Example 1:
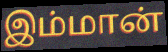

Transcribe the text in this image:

இம்மான்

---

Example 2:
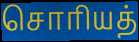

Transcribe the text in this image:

சொரியத்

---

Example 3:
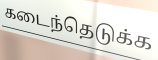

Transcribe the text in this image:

கடைந்தெடுக்க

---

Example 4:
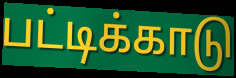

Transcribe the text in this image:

பட்டிக்காடு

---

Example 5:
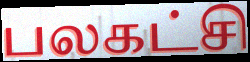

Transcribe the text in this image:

பலகட்சி